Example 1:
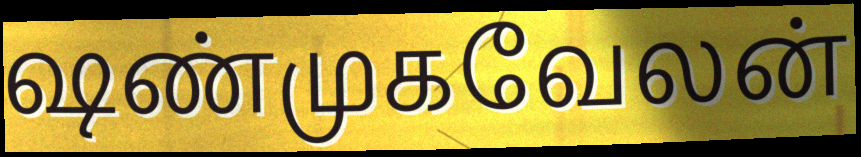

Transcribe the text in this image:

ஷண்முகவேலன்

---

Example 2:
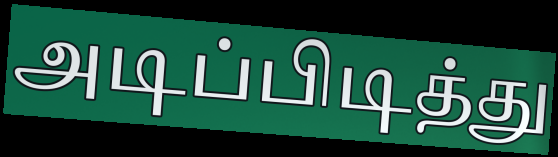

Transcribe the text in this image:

அடிப்பிடித்து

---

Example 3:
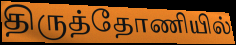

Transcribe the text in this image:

திருத்தோணியில்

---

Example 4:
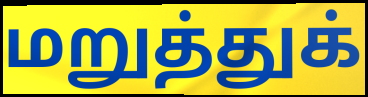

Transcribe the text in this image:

மறுத்துக்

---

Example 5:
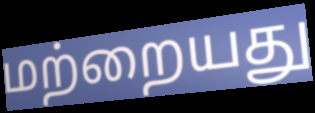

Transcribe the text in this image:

மற்றையது